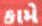
કામે